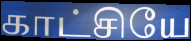
காட்சியே